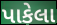
પાકેલા